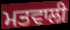
ਮਤਵਾਲੀ